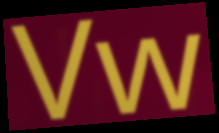
Vw